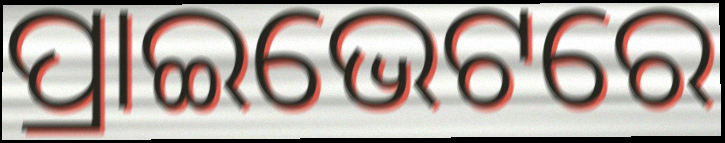
ପ୍ରାଇଭେଟରେ